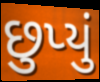
છુપ્યું